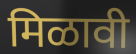
मिळावी